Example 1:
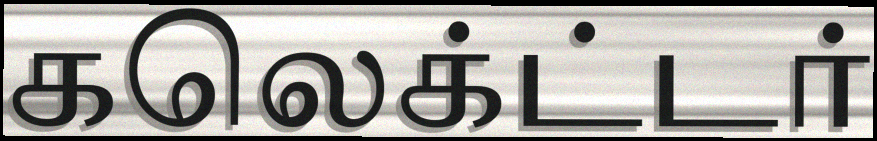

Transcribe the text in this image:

கலெக்ட்டர்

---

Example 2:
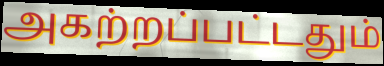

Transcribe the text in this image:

அகற்றப்பட்டதும்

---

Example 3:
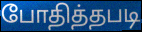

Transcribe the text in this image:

போதித்தபடி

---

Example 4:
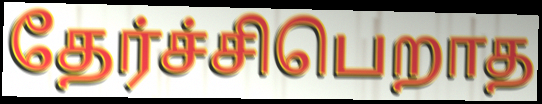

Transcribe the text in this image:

தேர்ச்சிபெறாத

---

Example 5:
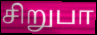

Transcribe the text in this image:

சிறுபா